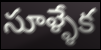
సూళ్ళేక